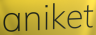
aniket